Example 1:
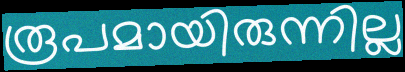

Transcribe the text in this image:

രൂപമായിരുന്നില്ല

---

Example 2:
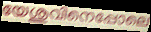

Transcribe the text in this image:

യേശുവിനെപ്പോലെ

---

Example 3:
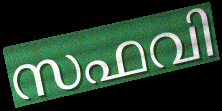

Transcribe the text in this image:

സഫവി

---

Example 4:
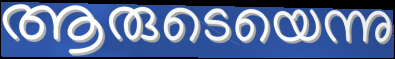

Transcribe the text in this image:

ആരുടെയെന്നു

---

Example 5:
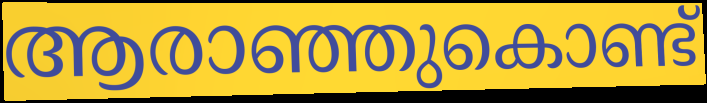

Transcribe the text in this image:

ആരാഞ്ഞുകൊണ്ട്